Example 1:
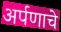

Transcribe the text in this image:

अर्पणाचे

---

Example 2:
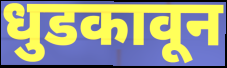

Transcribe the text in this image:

धुडकावून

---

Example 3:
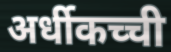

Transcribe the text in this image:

अर्धीकच्ची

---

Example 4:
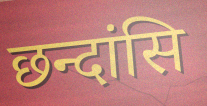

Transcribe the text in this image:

छन्दांसि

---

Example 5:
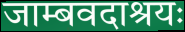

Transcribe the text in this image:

जाम्बवदाश्रयः